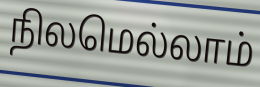
நிலமெல்லாம்